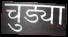
चुड्या